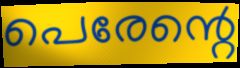
പെരേന്റെ